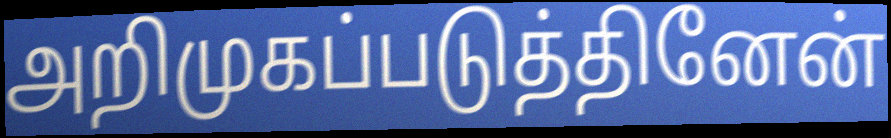
அறிமுகப்படுத்தினேன்